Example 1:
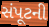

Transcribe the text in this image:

સંપૂટની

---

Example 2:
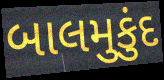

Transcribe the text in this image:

બાલમુકુંદ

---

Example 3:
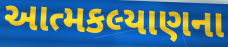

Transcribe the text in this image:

આત્મકલ્યાણના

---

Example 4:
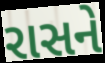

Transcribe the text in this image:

રાસને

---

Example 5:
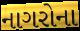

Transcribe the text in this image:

નાગરોના